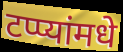
टप्प्यांमधे